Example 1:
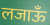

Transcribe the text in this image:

लजाऊँ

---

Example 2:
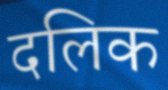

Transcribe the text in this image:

दलिक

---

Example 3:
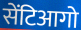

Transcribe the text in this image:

सेंटिआगो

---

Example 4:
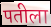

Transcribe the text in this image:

पतीला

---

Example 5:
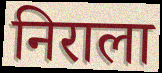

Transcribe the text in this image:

निराला